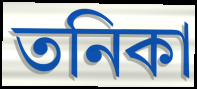
তনিকা